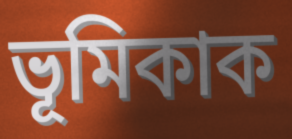
ভূমিকাক